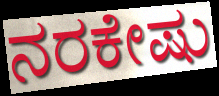
ನರಕೇಷು